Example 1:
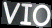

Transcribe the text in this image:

VIO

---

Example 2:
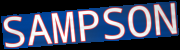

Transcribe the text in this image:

SAMPSON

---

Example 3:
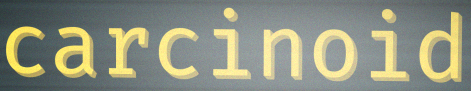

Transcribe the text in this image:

carcinoid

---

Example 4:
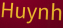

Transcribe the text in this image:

Huynh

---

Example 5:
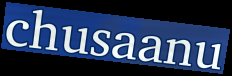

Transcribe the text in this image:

chusaanu